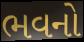
ભવનો